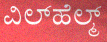
ವಿಲ್‌ಹೆಲ್ಮ್